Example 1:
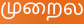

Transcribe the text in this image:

முறைல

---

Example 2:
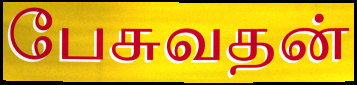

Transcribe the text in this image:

பேசுவதன்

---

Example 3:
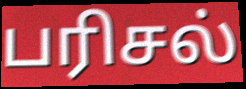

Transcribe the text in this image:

பரிசல்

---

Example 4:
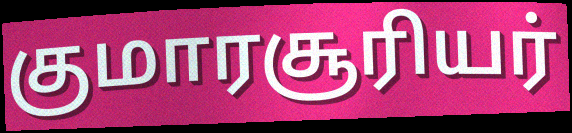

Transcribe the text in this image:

குமாரசூரியர்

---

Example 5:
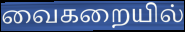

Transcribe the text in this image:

வைகறையில்